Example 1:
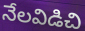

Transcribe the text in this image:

నేలవిడిచి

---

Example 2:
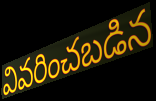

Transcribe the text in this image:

వివరించబడిన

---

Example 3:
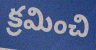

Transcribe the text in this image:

క్రమించి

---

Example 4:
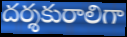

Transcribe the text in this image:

దర్శకురాలిగా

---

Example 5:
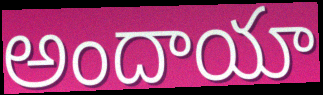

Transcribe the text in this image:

అందాయా